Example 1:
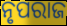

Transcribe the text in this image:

ନୃପରାଜ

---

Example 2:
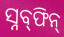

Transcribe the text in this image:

ସ୍ନବ୍‍ଫିନ୍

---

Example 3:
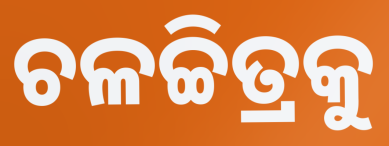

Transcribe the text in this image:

ଚଳଚ୍ଚିତ୍ରକୁ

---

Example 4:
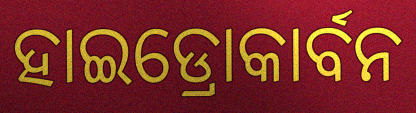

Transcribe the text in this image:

ହାଇଡ୍ରୋକାର୍ବନ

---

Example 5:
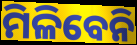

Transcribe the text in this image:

ମିଳିବେନି